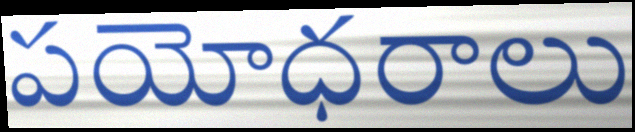
పయోధరాలు